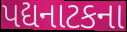
પદ્યનાટકના